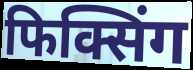
फिक्सिंग